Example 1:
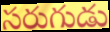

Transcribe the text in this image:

సరుగుడు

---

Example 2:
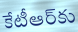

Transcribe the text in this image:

కేటీఆర్‌కు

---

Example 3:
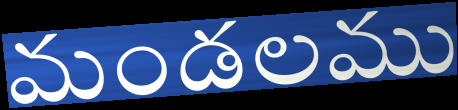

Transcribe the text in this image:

మండలము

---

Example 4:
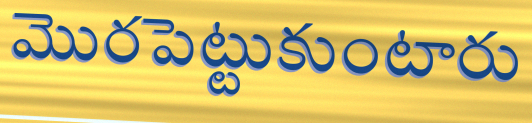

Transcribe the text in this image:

మొరపెట్టుకుంటారు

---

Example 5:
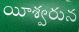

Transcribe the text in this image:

యీశ్వరున